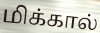
மிக்கால்